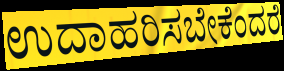
ಉದಾಹರಿಸಬೇಕೆಂದರೆ